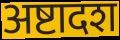
अष्टादश